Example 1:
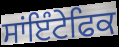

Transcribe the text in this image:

ਸਾਂਇੰਟੇਫਿਕ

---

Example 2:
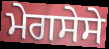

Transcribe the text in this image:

ਮੇਗਸੇਸੇ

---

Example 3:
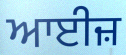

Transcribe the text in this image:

ਆਈਜ਼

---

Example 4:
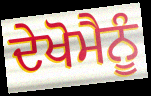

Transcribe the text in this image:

ਦੇਖੋਮੈਨੂੰ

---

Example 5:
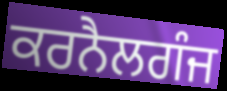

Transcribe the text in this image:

ਕਰਨੈਲਗੰਜ